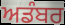
ਅਡੰਬਰ